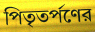
পিতৃতর্পণের